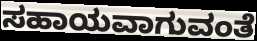
ಸಹಾಯವಾಗುವಂತೆ